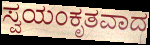
ಸ್ವಯಂಕೃತವಾದ